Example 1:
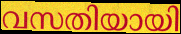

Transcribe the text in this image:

വസതിയായി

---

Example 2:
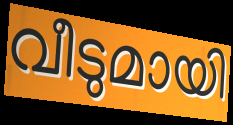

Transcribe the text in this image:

വീടുമായി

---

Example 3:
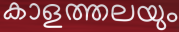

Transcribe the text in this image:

കാളത്തലയും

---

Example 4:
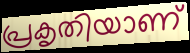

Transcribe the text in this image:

പ്രകൃതിയാണ്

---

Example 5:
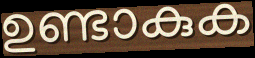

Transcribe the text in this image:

ഉണ്ടാകുക